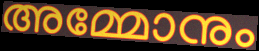
അമ്മോനും